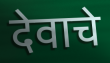
देवाचे